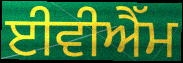
ਈਵੀਐੱਮ